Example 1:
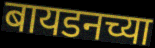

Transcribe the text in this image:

बायडनच्या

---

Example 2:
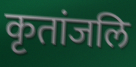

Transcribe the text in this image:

कृतांजलि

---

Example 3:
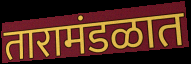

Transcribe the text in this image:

तारामंडळात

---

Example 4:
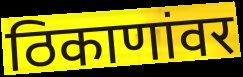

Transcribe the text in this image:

ठिकाणांवर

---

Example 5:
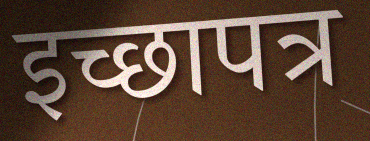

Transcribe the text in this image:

इच्छापत्र